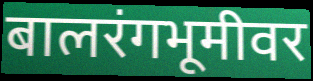
बालरंगभूमीवर